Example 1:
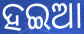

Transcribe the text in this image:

ହଇଆ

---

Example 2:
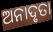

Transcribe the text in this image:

ଅନାଦୃତା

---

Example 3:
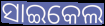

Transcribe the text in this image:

ସାଇକେଲ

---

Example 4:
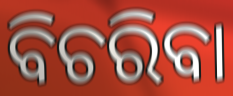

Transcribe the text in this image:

ବିଚରିବା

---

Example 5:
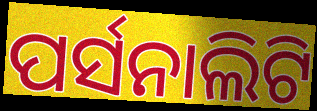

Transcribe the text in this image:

ପର୍ସନାଲିଟି